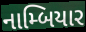
નામ્બિયાર